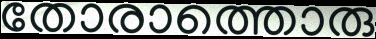
തോരാത്തൊരു